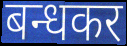
बन्धकर